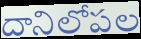
దానిలోపల